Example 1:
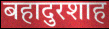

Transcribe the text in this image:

बहादुरशाह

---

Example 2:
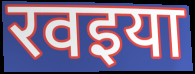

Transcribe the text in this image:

रवइया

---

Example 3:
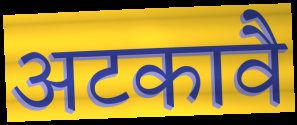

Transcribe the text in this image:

अटकावै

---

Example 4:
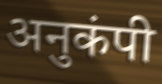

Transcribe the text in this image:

अनुकंपी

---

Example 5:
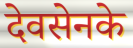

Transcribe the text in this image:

देवसेनके